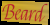
Beard